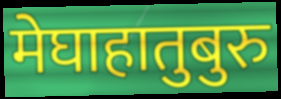
मेघाहातुबुरु